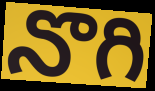
నొగి